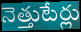
నెత్తుటేర్లు